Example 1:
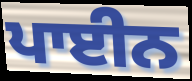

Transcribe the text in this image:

ਪਾਈਨ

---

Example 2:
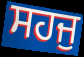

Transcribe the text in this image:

ਸਹਜੁ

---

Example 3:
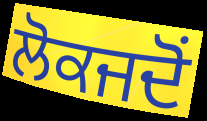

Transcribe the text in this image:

ਲੋਕਜਦੋਂ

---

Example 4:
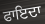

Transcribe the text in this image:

ਫਾਇਦਾ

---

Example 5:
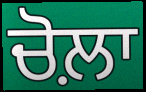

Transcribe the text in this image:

ਚੋਲ਼ਾ